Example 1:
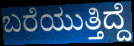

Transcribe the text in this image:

ಬರೆಯುತ್ತಿದ್ದೆ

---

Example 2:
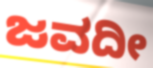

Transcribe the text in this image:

ಜವದೀ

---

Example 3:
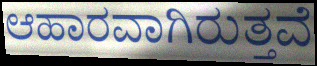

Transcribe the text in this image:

ಆಹಾರವಾಗಿರುತ್ತವೆ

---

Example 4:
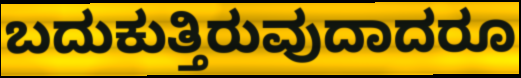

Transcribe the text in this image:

ಬದುಕುತ್ತಿರುವುದಾದರೂ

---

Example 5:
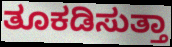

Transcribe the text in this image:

ತೂಕಡಿಸುತ್ತಾ